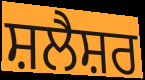
ਸ਼ਲੈਸ਼ਰ